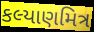
કલ્યાણમિત્ર